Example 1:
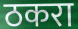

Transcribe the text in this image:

ठकरा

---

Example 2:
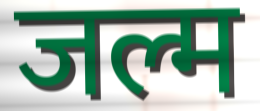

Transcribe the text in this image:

जल्म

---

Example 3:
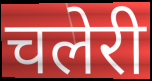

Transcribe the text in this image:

चलेरी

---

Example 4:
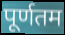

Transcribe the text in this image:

पूर्णतम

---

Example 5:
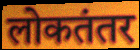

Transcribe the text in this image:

लोकतंतर